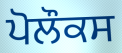
ਪੋਲੌਕਸ